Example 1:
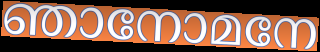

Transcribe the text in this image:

ഞാനോമനേ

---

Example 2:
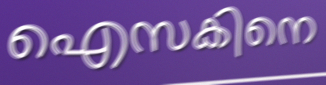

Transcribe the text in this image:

ഐസകിനെ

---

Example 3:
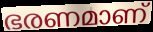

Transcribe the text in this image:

ഭരണമാണ്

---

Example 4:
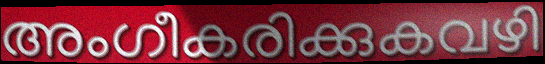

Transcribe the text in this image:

അംഗീകരിക്കുകവഴി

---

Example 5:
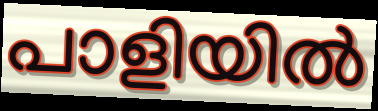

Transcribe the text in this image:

പാളിയിൽ